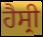
ਹੈਸ੍ਰੀ